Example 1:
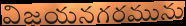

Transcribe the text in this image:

విజయనగరమును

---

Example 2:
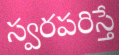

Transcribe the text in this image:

స్వరపరిస్తే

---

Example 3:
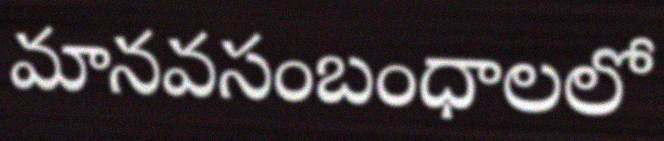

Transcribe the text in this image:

మానవసంబంధాలలో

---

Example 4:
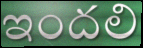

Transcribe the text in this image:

ఇందలి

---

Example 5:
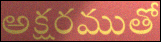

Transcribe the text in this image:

అక్షరముతో